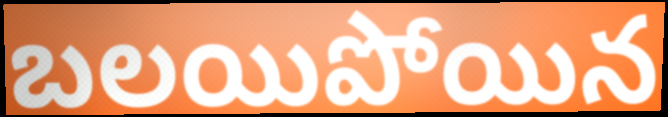
బలయిపోయిన